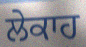
ਲੇਕਾਹ